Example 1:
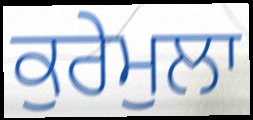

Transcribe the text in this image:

ਕੁਰੇਮੁਲਾ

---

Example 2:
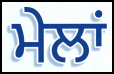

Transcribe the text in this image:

ਮੇਲਾਂ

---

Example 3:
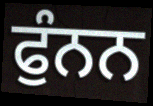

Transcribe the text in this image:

ਫੁੰਨਨ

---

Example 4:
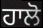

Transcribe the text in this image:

ਹਾਲੋ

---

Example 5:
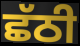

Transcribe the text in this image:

ਛੱਠੀ